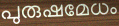
പുരുഷമേധം